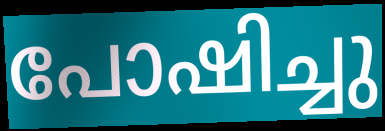
പോഷിച്ചു